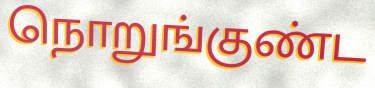
நொறுங்குண்ட